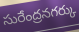
సురేంద్రనగర్కు